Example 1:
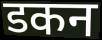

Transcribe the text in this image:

डकन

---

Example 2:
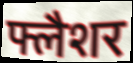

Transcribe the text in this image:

फ्लैशर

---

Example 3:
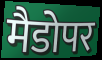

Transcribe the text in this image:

मैडोपर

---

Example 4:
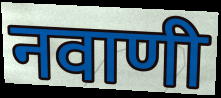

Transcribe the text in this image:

नवाणी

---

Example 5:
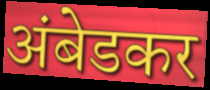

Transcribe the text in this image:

अंबेडकर